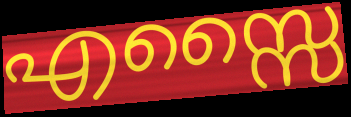
എസ്സൈ